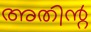
അതിന്റ